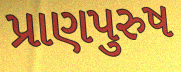
પ્રાણપુરુષ